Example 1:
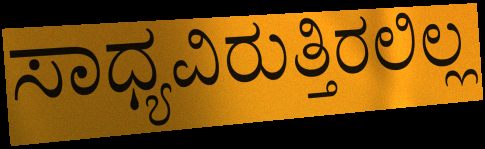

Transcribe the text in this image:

ಸಾಧ್ಯವಿರುತ್ತಿರಲಿಲ್ಲ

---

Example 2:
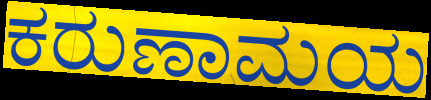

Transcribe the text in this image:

ಕರುಣಾಮಯ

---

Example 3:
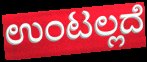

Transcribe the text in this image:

ಉಂಟಲ್ಲದೆ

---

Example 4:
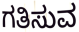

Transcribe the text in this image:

ಗತಿಸುವ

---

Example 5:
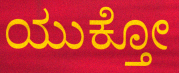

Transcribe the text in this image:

ಯುಕ್ತೋ